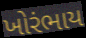
ખોરંભાય